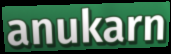
anukarn